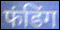
फंडिंग